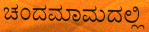
ಚಂದಮಾಮದಲ್ಲಿ